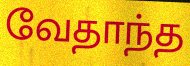
வேதாந்த